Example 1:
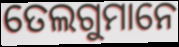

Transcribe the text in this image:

ତେଲଗୁମାନେ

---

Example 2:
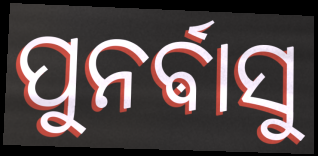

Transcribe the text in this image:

ପୁନର୍ଵାସୁ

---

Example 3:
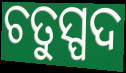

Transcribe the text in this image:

ଚତୁସ୍ପଦ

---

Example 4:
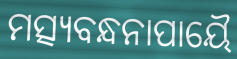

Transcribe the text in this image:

ମତ୍ସ୍ୟବନ୍ଧନାପାୟୈ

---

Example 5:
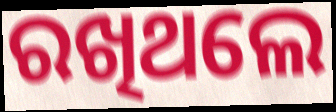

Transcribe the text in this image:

ରଖିଥଲେ